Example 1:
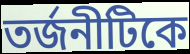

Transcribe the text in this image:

তর্জনীটিকে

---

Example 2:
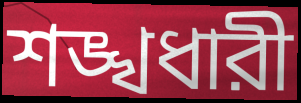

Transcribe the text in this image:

শঙ্খধারী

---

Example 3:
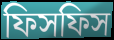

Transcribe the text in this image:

ফিসফিস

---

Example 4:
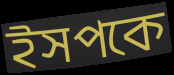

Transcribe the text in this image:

ইসপকে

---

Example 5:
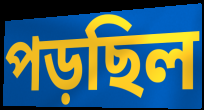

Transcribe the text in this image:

পড়ছিল